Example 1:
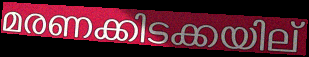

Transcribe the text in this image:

മരണക്കിടക്കയില്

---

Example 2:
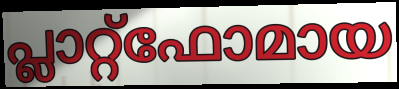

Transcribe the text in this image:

പ്ലാറ്റ്ഫോമായ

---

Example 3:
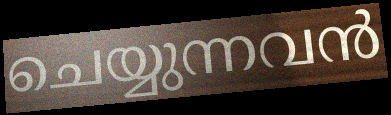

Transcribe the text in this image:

ചെയ്യുന്നവൻ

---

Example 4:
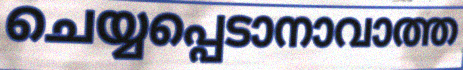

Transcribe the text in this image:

ചെയ്യപ്പെടാനാവാത്ത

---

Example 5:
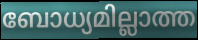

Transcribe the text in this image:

ബോധ്യമില്ലാത്ത